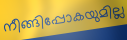
നീങ്ങിപ്പോകയുമില്ല